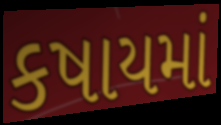
કષાયમાં